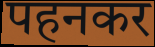
पहनकर